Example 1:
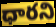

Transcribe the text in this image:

ధారని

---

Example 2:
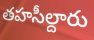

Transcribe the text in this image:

తహసీల్దారు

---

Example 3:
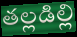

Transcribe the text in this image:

తల్లడిల్లి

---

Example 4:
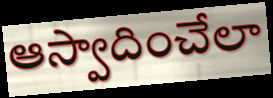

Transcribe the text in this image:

ఆస్వాదించేలా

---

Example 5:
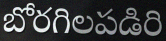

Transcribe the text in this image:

బోరగిలపడిరి